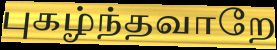
புகழ்ந்தவாறே